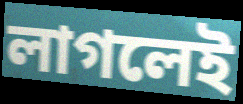
লাগলেই